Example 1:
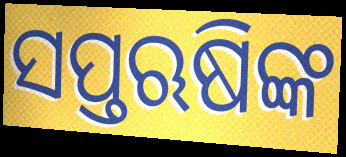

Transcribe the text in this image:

ସପ୍ତଋଷିଙ୍କ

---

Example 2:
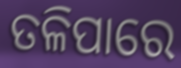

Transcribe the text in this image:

ତଳିପାରେ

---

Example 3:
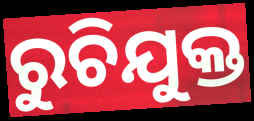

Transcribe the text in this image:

ରୁଚିଯୁକ୍ତ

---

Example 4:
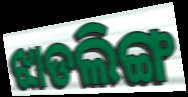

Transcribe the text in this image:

ଝାଡଲିଙ୍ଗ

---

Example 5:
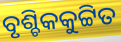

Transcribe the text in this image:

ବୃଶ୍ଚିକକୁଟ୍ଟିତ